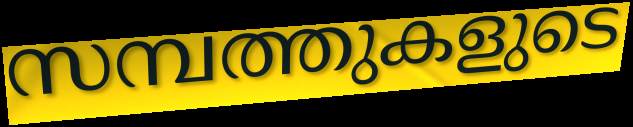
സമ്പത്തുകളുടെ